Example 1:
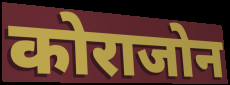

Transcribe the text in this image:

कोराजोन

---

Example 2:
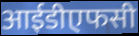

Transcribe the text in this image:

आईडीएफसी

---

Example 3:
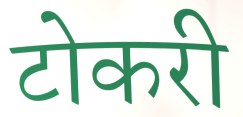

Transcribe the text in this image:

टोकरी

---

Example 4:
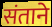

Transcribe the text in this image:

संताने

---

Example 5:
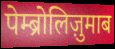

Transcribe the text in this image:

पेम्ब्रोलिज़ुमाब